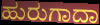
ಹುರುಗಾದಾ